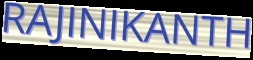
RAJINIKANTH